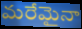
మరేమైనా